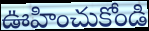
ఊహించుకోండి